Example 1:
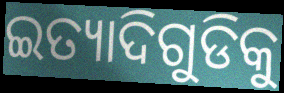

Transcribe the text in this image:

ଇତ୍ୟାଦିଗୁଡିକୁ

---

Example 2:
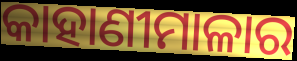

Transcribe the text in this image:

କାହାଣୀମାଳାର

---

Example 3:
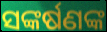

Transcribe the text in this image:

ସଙ୍କର୍ଷଣଙ୍କ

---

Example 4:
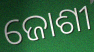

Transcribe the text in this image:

ଜୋଶୀ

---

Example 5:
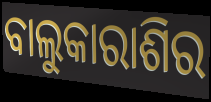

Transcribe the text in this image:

ବାଲୁକାରାଶିର